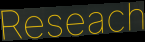
Reseach